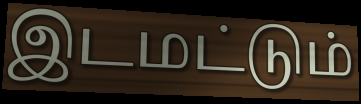
இடமட்டும்